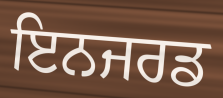
ਇਨਜਰਡ